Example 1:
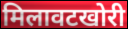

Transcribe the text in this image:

मिलावटखोरी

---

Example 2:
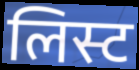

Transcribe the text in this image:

लिस्ट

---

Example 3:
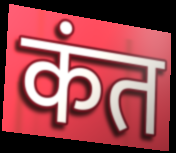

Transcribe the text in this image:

कंत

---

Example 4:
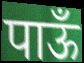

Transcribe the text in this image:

पाऊँ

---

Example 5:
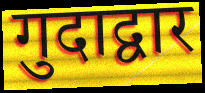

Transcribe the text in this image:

गुदाद्वार